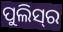
ପୁଲିସ୍‍ର